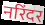
नरिंदर